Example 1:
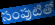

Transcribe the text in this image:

సంపుటితో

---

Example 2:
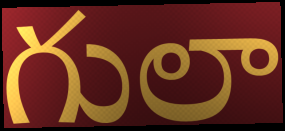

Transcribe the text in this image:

గులా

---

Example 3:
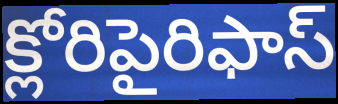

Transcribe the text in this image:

క్లోరిపైరిఫాస్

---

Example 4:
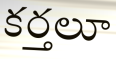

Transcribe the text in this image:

కర్తలూ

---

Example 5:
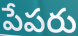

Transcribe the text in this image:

పేపరు